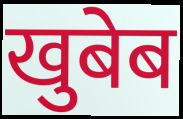
खुबेब